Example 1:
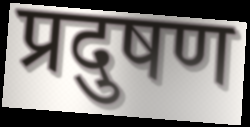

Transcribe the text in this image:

प्रदुषण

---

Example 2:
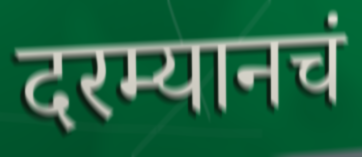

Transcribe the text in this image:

दरम्यानचं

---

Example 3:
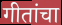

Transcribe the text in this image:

गीतांचा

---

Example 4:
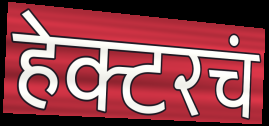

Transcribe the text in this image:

हेक्टरचं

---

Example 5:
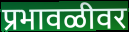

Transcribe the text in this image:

प्रभावळीवर